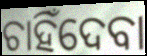
ଚାହିଁଦେବା